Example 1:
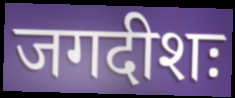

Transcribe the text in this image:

जगदीशः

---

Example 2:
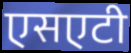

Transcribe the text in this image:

एसएटी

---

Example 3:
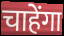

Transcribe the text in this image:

चाहेंगा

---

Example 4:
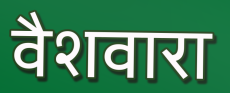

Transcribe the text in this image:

वैशवारा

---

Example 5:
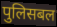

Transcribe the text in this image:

पुलिसबल